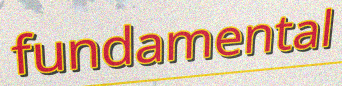
fundamental